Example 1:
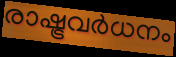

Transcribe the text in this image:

രാഷ്ട്രവർധനം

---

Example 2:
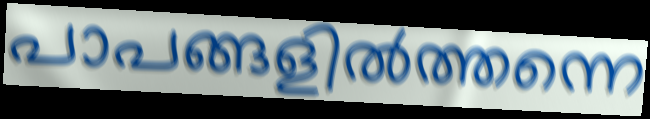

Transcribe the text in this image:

പാപങ്ങളിൽത്തന്നെ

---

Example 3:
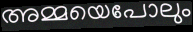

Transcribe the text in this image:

അമ്മയെപോലും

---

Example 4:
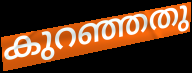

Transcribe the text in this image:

കുറഞ്ഞതു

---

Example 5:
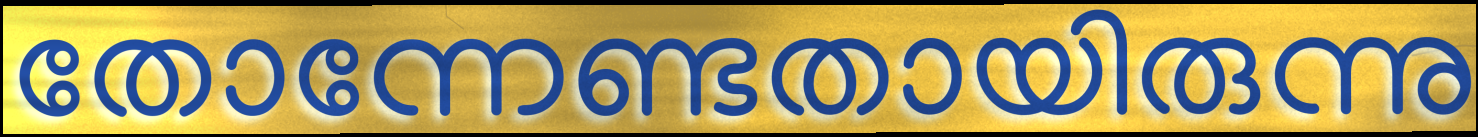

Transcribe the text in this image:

തോന്നേണ്ടതായിരുന്നു